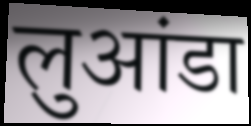
लुआंडा